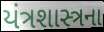
યંત્રશાસ્ત્રના